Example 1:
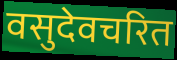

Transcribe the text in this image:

वसुदेवचरित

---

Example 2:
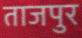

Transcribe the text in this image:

ताजपुर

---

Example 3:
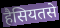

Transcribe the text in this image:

हैसियतसे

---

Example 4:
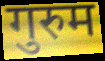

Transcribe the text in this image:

गुरुम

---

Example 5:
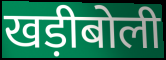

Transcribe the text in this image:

खड़ीबोली